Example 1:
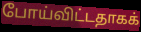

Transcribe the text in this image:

போய்விட்டதாகக்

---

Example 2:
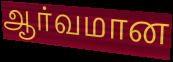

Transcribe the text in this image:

ஆர்வமான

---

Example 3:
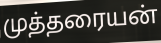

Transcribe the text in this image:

முத்தரையன்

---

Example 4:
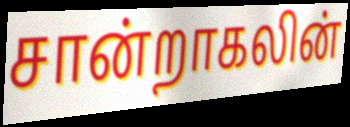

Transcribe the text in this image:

சான்றாகலின்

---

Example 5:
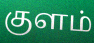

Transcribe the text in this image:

குளம்